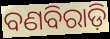
ବଣବିରାଡ଼ି